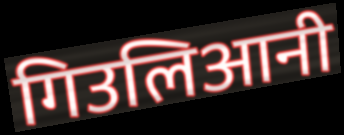
गिउलिआनी